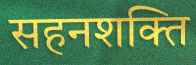
सहनशक्ति